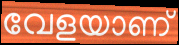
വേളയാണ്